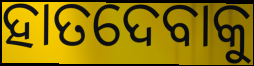
ହାତଦେବାକୁ